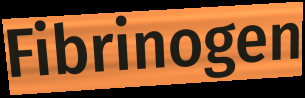
Fibrinogen